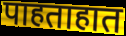
पाहताहात